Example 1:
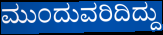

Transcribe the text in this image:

ಮುಂದುವರಿದಿದ್ದು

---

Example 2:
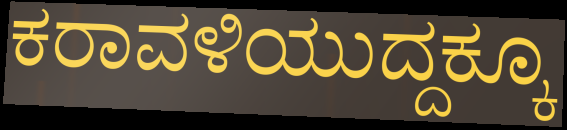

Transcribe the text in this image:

ಕರಾವಳಿಯುದ್ದಕ್ಕೂ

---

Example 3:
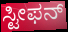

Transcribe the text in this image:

ಸ್ಟೀಫನ್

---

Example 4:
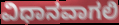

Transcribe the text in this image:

ವಿಧಾನವಾಗಲಿ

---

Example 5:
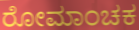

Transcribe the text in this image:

ರೋಮಾಂಚಕ